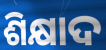
ଶିକ୍ଷାଦ